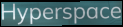
Hyperspace